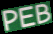
PEB